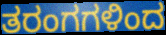
ತರಂಗಗಳಿಂದ